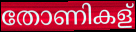
തോണികള്